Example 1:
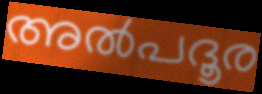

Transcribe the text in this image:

അൽപദൂര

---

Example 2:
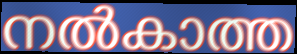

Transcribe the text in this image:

നൽകാത്ത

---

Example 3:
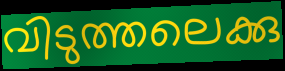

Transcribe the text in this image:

വിടുത്തലെക്കു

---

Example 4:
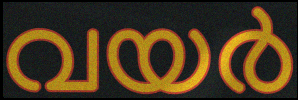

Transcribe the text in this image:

വയർ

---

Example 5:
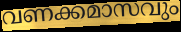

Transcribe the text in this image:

വണക്കമാസവും